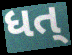
ધત્